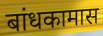
बांधकामास